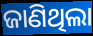
ଜାଣିଥିଲା